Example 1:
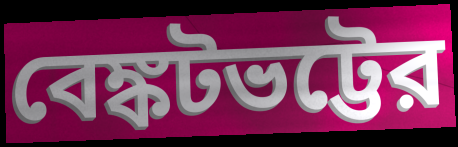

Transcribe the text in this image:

বেঙ্কটভট্টের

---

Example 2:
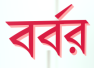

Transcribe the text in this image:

বর্বর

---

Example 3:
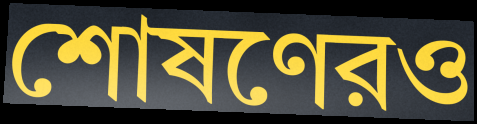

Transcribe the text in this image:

শোষণেরও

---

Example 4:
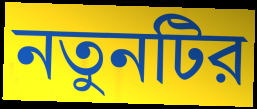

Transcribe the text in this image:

নতুনটির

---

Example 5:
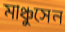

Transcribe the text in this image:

মাঞ্চুসেন